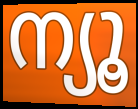
ന്യൂ